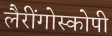
लैरींगोस्कोपी